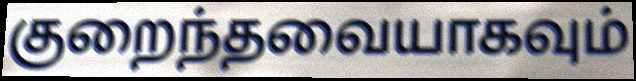
குறைந்தவையாகவும்